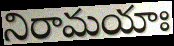
నిరామయాః